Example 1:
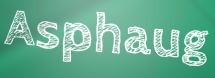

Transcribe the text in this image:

Asphaug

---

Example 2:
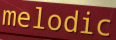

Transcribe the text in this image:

melodic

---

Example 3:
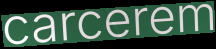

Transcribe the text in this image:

carcerem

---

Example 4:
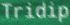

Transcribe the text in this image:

Tridip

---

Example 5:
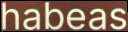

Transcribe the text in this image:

habeas